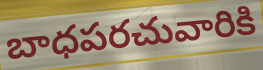
బాధపరచువారికి